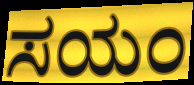
ಸಯಂ